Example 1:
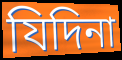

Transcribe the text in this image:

যিদিনা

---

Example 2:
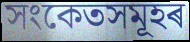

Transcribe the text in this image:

সংকেতসমূহৰ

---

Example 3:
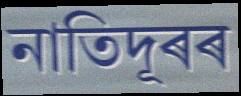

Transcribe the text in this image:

নাতিদূৰৰ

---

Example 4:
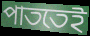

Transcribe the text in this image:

পাততেই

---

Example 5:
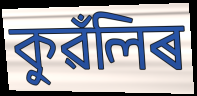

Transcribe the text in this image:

কুৱঁলিৰ